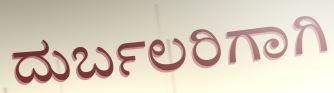
ದುರ್ಬಲರಿಗಾಗಿ